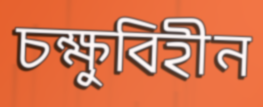
চক্ষুবিহীন